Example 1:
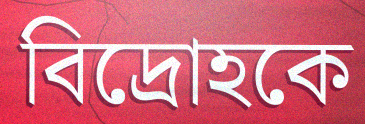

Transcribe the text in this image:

বিদ্রোহকে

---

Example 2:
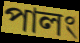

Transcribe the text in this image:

পালং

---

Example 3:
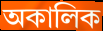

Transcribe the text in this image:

অকালিক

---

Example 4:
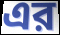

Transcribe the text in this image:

এর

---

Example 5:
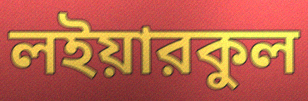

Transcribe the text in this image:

লইয়ারকুল